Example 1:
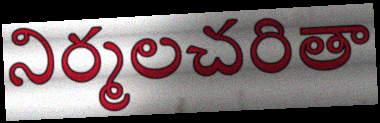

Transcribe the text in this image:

నిర్మలచరితా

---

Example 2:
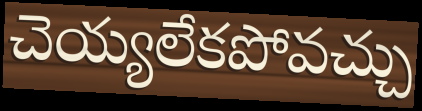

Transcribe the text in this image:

చెయ్యలేకపోవచ్చు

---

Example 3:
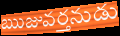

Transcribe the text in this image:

ఋజువర్తనుడు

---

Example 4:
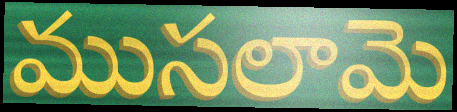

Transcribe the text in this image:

ముసలామె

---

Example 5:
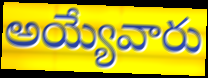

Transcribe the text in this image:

అయ్యేవారు